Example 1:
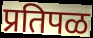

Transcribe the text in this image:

प्रतिपळ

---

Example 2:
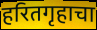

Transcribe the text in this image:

हरितगृहाचा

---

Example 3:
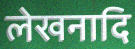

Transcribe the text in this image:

लेखनादि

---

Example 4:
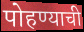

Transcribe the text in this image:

पोहण्याची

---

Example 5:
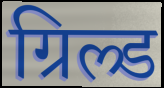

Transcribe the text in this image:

ग्रिल्ड